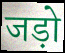
जड़ो